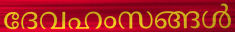
ദേവഹംസങ്ങൾ